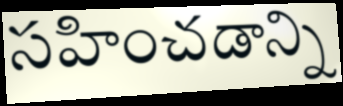
సహించడాన్ని